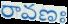
రావణః